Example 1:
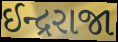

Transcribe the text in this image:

ઈન્દ્રરાજા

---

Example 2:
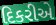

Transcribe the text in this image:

દિકરીએ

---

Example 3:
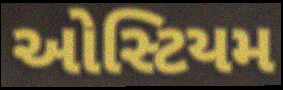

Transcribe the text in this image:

ઓસ્ટિયમ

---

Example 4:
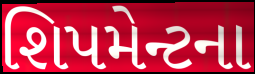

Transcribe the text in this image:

શિપમેન્ટના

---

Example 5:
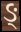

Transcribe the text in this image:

ઙ્